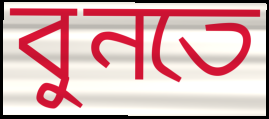
বুনতে